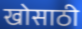
खोसाठी